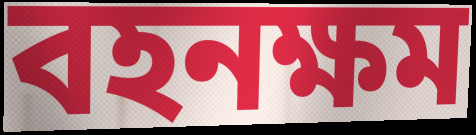
বহনক্ষম